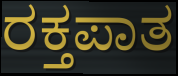
ರಕ್ತಪಾತ